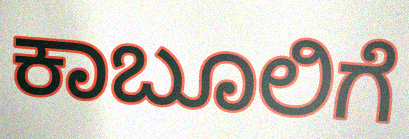
ಕಾಬೂಲಿಗೆ